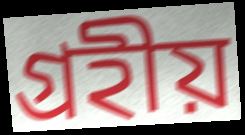
গ্রহীয়